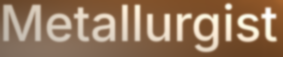
Metallurgist